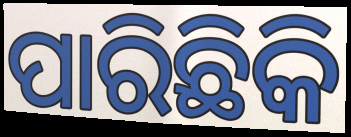
ପାରିଛିକି